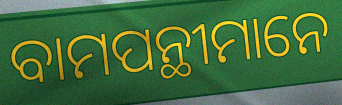
ବାମପନ୍ଥୀମାନେ